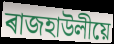
ৰাজহাউলীয়ে